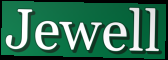
Jewell